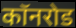
कॉनरोड